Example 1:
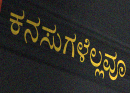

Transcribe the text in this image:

ಕನಸುಗಳೆಲ್ಲವೂ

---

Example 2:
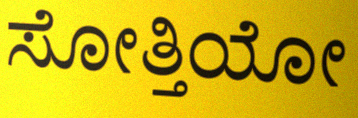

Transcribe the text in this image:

ಸೋತ್ತಿಯೋ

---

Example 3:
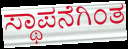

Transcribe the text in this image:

ಸ್ಥಾಪನೆಗಿಂತ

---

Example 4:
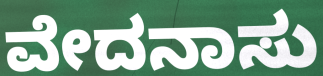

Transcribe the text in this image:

ವೇದನಾಸು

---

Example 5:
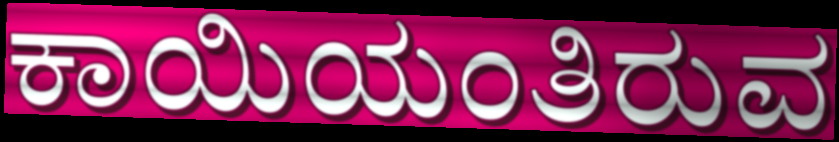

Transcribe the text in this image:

ಕಾಯಿಯಂತಿರುವ